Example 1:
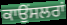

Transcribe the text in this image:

ਕਾਉਂਸਲਰਾਂ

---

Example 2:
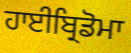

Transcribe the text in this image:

ਹਾਈਬ੍ਰਿਡੋਮਾ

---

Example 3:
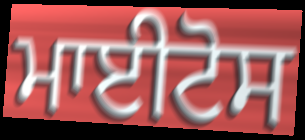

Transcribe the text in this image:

ਮਾਈਟੋਸ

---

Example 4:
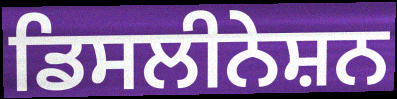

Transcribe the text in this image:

ਡਿਸਲੀਨੇਸ਼ਨ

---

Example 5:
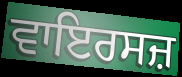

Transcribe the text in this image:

ਵਾਇਰਸਜ਼